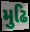
મુઢિ